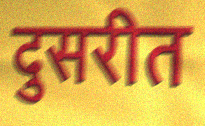
दुसरीत